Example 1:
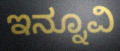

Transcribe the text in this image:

ಇನ್ನೂವಿ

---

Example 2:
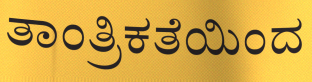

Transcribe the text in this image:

ತಾಂತ್ರಿಕತೆಯಿಂದ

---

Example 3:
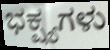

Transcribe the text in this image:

ಭಕ್ಷ್ಯಗಳು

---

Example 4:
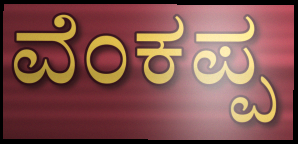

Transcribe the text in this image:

ವೆಂಕಪ್ಪ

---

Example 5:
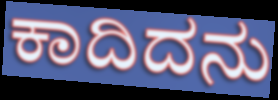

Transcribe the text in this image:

ಕಾದಿದನು